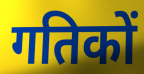
गतिकों